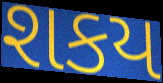
શકય